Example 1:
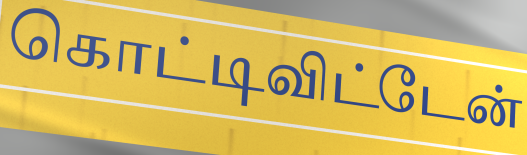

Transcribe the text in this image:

கொட்டிவிட்டேன்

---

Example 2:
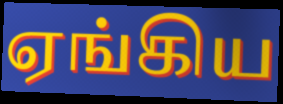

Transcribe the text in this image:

ஏங்கிய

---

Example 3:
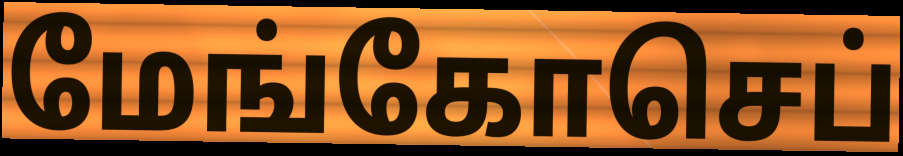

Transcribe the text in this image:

மேங்கோசெப்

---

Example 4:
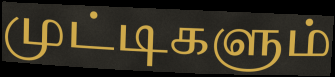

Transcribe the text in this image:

முட்டிகளும்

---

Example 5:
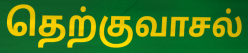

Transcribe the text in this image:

தெற்குவாசல்